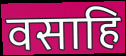
वसाहि